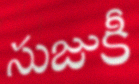
సుజుకీ